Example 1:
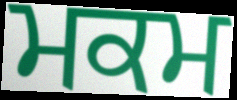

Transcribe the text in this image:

ਮਕਮ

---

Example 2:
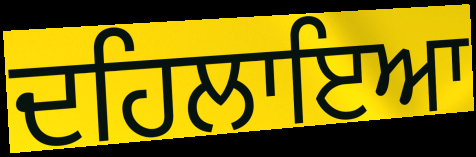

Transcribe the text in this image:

ਦਹਿਲਾਇਆ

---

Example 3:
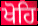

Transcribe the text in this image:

ਖੋਹਿ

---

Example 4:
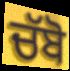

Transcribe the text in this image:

ਚੱਬੋ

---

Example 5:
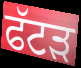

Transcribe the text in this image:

ਫੱਟੜ